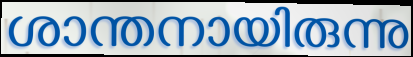
ശാന്തനായിരുന്നു